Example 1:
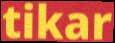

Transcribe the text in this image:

tikar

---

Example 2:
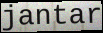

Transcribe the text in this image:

jantar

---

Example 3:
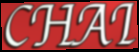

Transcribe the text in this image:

CHAI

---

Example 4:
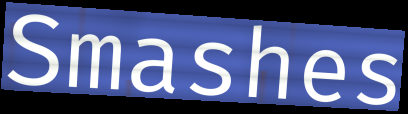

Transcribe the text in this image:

Smashes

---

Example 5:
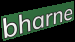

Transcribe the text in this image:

bharne